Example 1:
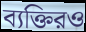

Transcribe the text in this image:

ব্যক্তিরও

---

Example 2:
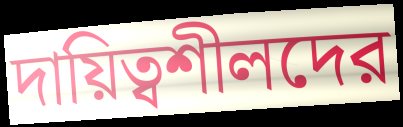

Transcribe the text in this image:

দায়িত্বশীলদের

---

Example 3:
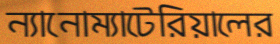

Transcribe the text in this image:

ন্যানোম্যাটেরিয়ালের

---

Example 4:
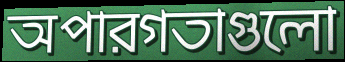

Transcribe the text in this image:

অপারগতাগুলো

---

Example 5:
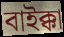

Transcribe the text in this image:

বাইক্কা